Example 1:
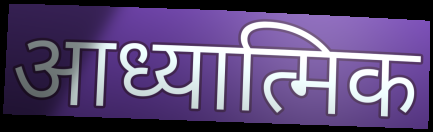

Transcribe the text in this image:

आध्यात्मिक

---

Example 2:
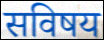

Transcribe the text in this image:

सविषय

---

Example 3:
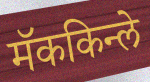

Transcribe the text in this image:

मॅककिन्ले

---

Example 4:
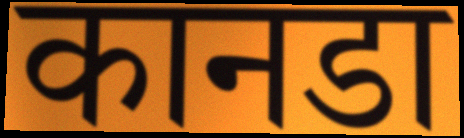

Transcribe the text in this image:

कानडा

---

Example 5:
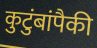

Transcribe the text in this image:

कुटुंबांपैकी